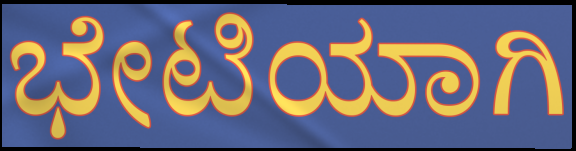
ಭೇಟಿಯಾಗಿ